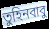
তুহিনবাবু